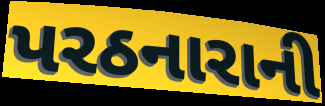
પરઠનારાની